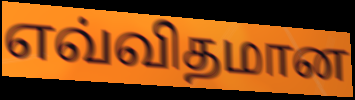
எவ்விதமான